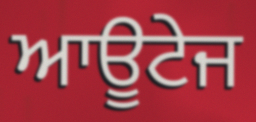
ਆਊਟੇਜ